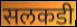
सलकडी